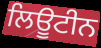
ਲਿਊਟੀਨ